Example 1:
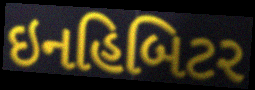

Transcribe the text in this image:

ઇનહિબિટર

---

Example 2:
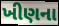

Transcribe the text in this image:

ખીણના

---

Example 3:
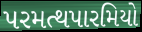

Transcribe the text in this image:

પરમત્થપારમિયો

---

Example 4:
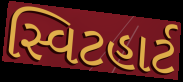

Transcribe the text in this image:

સ્વિટહાર્ટ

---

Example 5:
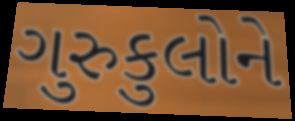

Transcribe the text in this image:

ગુરુકુલોને